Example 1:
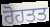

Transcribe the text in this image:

ਰੋਹਤਤ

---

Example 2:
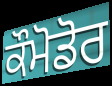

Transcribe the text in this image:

ਕੌਮੋਡੋਰ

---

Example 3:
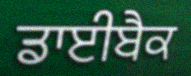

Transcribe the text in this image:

ਡਾਈਬੈਕ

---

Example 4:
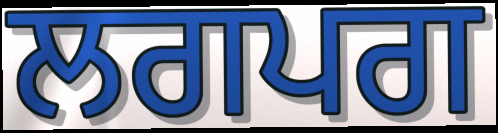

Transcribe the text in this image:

ਲਗਪਗ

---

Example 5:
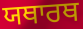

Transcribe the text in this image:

ਯਥਾਰਥ